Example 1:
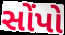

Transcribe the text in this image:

સોંપો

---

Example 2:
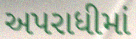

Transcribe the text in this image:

અપરાધીમાં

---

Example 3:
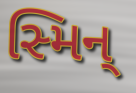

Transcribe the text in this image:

સ્મિન્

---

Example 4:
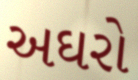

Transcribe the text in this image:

અઘરો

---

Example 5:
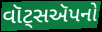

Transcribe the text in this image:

વૉટ્સઍપનો